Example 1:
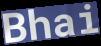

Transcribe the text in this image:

Bhai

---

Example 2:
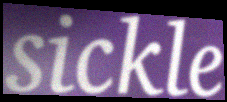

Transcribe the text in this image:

sickle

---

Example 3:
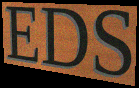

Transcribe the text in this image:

EDS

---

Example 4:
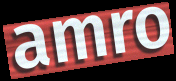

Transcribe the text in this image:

amro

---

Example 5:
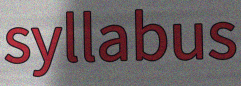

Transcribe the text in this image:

syllabus